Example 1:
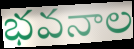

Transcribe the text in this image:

భవనాల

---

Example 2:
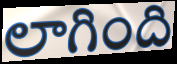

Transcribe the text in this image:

లాగింది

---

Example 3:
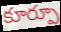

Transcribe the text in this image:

కూర్పూ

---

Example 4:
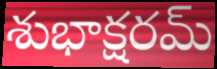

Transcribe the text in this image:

శుభాక్షరమ్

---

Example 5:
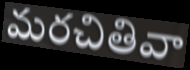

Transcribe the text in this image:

మరచితివా